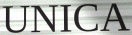
UNICA